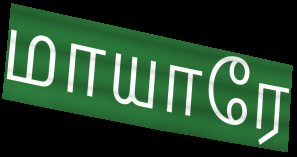
மாயாரே